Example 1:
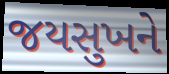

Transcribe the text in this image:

જયસુખને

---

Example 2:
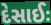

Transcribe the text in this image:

દેસાઈઃ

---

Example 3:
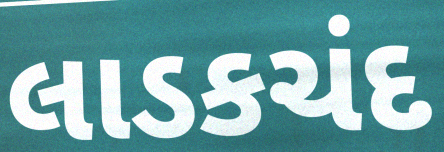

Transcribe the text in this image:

લાડકચંદ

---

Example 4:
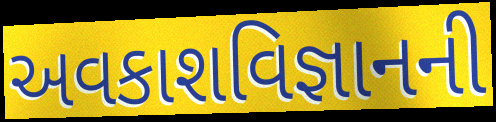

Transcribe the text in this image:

અવકાશવિજ્ઞાનની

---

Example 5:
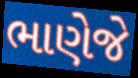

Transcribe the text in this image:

ભાણેજે